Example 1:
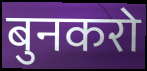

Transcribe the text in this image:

बुनकरो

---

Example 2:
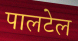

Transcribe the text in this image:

पालटेल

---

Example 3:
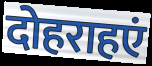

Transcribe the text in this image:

दोहराहएं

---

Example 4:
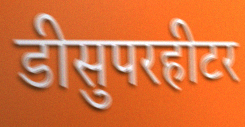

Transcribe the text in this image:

डीसुपरहीटर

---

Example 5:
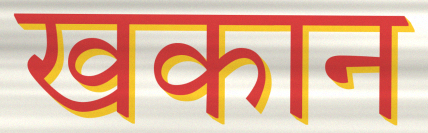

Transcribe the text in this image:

खकान